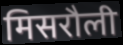
मिसरौली